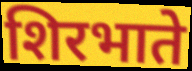
शिरभाते